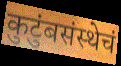
कुटुंबसंस्थेचं